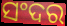
ସଂଦର